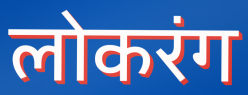
लोकरंग